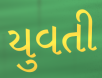
યુવતી